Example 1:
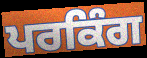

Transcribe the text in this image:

ਪਰਕਿੰਗ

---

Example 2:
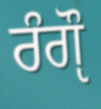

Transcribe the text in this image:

ਰੰਗੵੌ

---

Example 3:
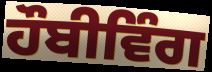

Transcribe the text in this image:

ਹੌਬੀਵਿੰਗ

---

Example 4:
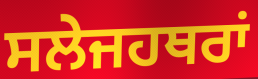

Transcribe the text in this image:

ਸਲੇਜਹਥਰਾਂ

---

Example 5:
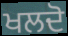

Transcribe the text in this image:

ਖਲਦੋ